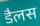
डैलस